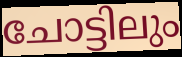
ചോട്ടിലും